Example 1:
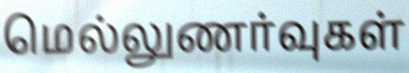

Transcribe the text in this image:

மெல்லுணர்வுகள்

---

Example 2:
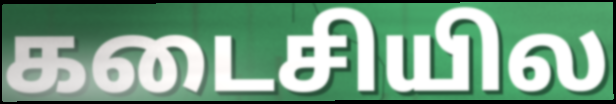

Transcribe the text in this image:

கடைசியில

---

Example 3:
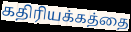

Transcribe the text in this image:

கதிரியக்கத்தை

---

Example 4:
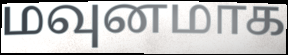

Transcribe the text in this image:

மவுனமாக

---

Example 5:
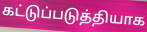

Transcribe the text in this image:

கட்டுப்படுத்தியாக